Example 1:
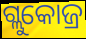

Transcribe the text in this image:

ଗ୍ଲୁକୋଜ୍ର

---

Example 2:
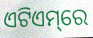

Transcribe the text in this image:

ଏଟିଏମ୍‌ରେ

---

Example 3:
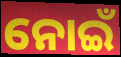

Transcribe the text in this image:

ନୋଇଁ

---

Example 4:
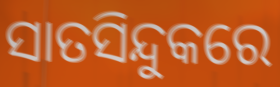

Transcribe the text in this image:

ସାତସିନ୍ଦୁକରେ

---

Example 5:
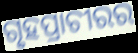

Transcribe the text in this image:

ଗୃହପ୍ରାଚୀରର